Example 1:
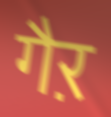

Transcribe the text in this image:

गैऱ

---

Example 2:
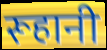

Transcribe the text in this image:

रूहानी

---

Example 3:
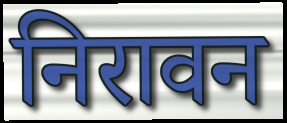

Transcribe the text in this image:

निरावन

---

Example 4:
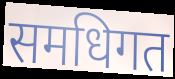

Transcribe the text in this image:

समधिगत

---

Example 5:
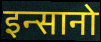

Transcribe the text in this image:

इन्सानो